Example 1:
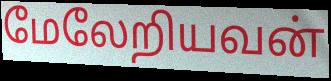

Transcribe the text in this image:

மேலேறியவன்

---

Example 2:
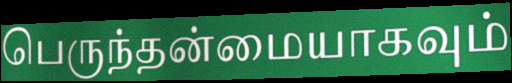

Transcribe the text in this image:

பெருந்தன்மையாகவும்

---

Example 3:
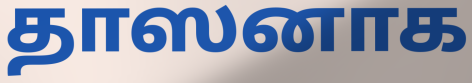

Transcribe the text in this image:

தாஸனாக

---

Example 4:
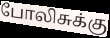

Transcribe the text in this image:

போலிசுக்கு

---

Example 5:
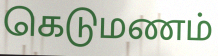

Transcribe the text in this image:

கெடுமணம்